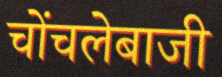
चोंचलेबाजी